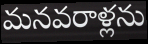
మనవరాళ్లను